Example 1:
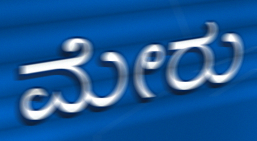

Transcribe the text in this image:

ಮೇರು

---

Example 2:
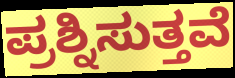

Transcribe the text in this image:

ಪ್ರಶ್ನಿಸುತ್ತವೆ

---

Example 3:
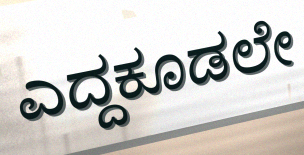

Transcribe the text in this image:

ಎದ್ದಕೂಡಲೇ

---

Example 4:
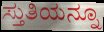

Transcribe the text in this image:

ಸ್ತುತಿಯನ್ನೂ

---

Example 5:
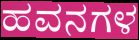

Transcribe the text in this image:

ಹವನಗಳ